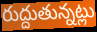
రుద్దుతున్నట్లు